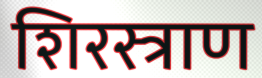
शिरस्त्राण